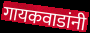
गायकवाडांनी